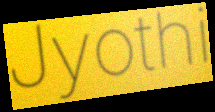
Jyothi